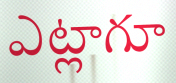
ఎట్లాగూ